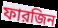
ফারজিন